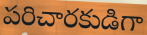
పరిచారకుడిగా